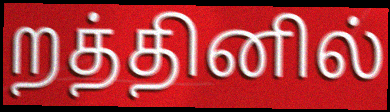
றத்தினில்